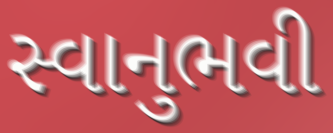
સ્વાનુભવી